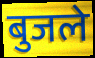
बुजले